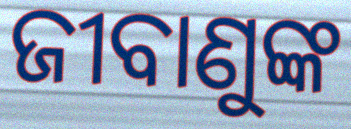
ଜୀବାଣୁଙ୍କ